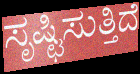
ಸೃಷ್ಟಿಸುತ್ತಿದೆ